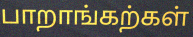
பாறாங்கற்கள்